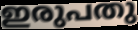
ഇരുപതു